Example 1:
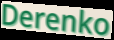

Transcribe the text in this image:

Derenko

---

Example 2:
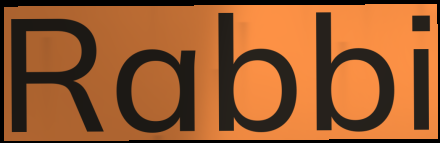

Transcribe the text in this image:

Rabbi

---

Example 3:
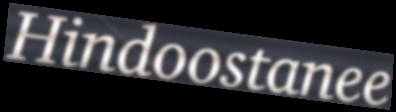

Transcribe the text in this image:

Hindoostanee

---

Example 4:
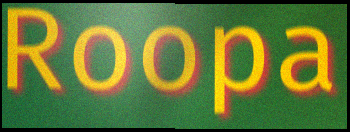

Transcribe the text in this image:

Roopa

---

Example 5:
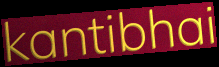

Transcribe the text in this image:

kantibhai